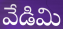
వేడిమి